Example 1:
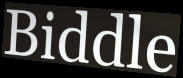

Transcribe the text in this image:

Biddle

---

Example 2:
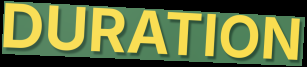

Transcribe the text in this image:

DURATION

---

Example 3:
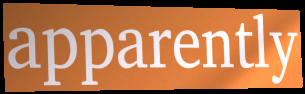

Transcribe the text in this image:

apparently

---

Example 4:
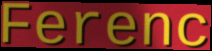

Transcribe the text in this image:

Ferenc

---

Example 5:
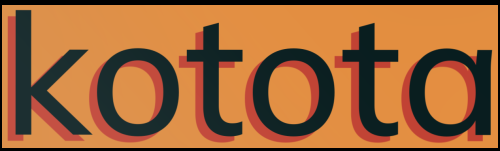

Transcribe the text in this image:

kotota